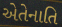
એતેનાતિ